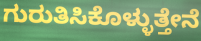
ಗುರುತಿಸಿಕೊಳ್ಳುತ್ತೇನೆ